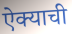
ऐक्याची